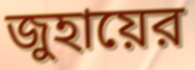
জুহায়ের